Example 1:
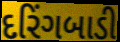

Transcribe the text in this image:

દરિંગબાડી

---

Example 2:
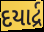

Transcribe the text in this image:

દયાર્દ્ર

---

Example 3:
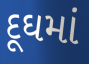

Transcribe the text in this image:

દૂઘમાં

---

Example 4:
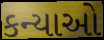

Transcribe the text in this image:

કન્યાઓ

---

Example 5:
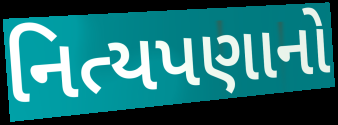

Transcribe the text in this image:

નિત્યપણાનો